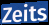
Zeits